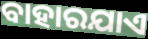
ବାହାରଯାଏ